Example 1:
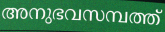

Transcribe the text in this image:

അനുഭവസമ്പത്ത്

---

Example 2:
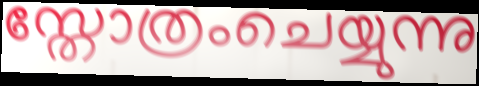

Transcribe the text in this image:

സ്തോത്രംചെയ്യുന്നു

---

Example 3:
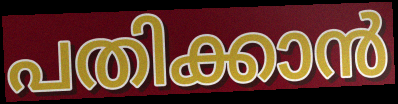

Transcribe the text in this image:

പതിക്കാൻ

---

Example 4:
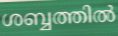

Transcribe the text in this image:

ശബ്ബത്തിൽ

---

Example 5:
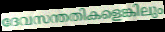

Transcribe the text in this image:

ദേവസന്തതികളെങ്കിലും